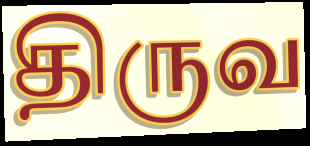
திருவ